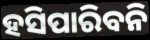
ହସିପାରିବନି